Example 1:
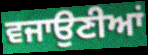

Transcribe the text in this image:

ਵਜਾਉਣੀਆਂ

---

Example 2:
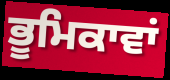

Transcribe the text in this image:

ਭੂਮਿਕਾਵਾਂ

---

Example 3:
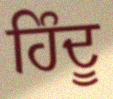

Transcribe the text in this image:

ਹਿੰਦੂ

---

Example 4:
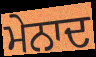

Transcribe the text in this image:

ਮੇਨਾਦ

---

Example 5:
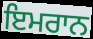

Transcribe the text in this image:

ਇਮਰਾਨ